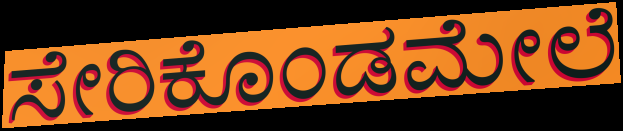
ಸೇರಿಕೊಂಡಮೇಲೆ